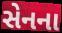
સેનના